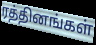
ரத்தினங்கள்